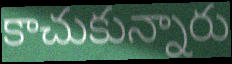
కాచుకున్నారు